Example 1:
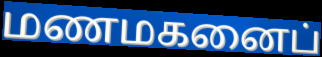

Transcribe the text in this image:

மணமகனைப்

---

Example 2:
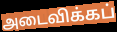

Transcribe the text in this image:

அடைவிக்கப்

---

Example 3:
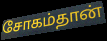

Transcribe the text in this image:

சோகம்தான்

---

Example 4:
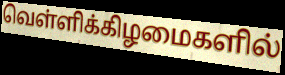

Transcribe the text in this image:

வெள்ளிக்கிழமைகளில்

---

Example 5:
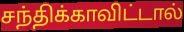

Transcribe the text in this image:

சந்திக்காவிட்டால்